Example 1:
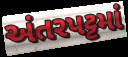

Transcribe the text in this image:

અંતરપટ્ટમાં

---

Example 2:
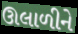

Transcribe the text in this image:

ઊલાળીને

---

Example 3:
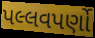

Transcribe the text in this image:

પલ્લવપર્ણો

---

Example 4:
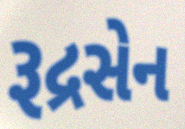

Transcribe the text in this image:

રૂદ્રસેન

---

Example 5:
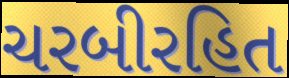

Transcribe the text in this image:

ચરબીરહિત